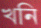
খনি